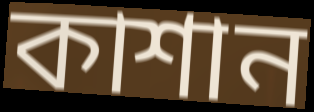
কাশান